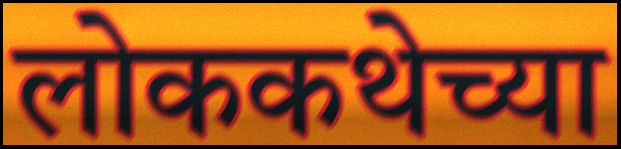
लोककथेच्या